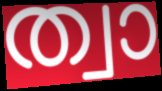
ത്വാ